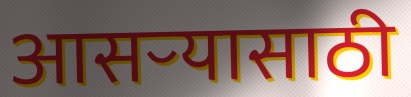
आसऱ्यासाठी